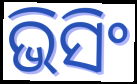
ଭିସିଂ